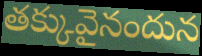
తక్కువైనందున